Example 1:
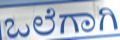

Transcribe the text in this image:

ಒಲೆಗಾಗಿ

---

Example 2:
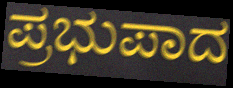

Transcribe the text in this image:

ಪ್ರಭುಪಾದ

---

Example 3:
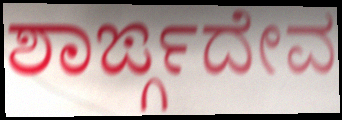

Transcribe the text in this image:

ಶಾರ್ಙ್ಗದೇವ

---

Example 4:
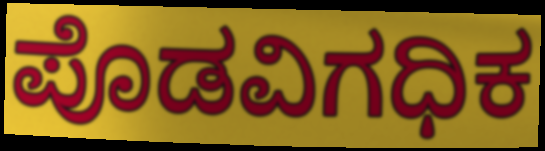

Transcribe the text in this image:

ಪೊಡವಿಗಧಿಕ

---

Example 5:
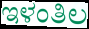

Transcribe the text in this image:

ಇಳಂತಿಲ